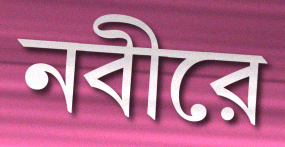
নবীরে